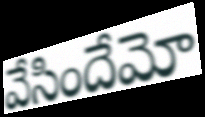
వేసిందేమో